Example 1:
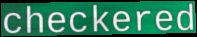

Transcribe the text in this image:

checkered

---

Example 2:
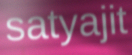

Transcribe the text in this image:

satyajit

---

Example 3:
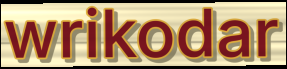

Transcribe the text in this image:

wrikodar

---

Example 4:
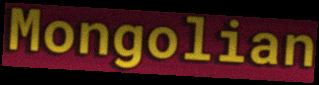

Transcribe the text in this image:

Mongolian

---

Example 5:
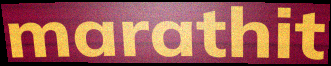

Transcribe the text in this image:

marathit